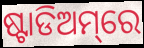
ଷ୍ଟାଡିଅମ୍‌ରେ